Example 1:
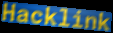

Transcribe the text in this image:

Hacklink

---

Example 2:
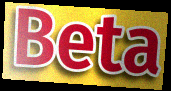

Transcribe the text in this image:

Beta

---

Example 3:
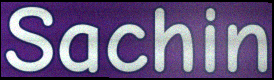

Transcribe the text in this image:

Sachin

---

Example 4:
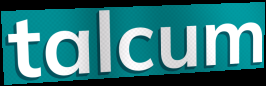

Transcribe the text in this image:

talcum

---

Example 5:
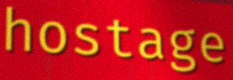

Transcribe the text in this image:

hostage